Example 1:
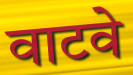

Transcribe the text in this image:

वाटवे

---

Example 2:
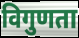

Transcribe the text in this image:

विगुणता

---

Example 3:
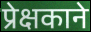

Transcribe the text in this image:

प्रेक्षकाने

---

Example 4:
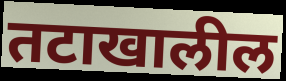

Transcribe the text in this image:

तटाखालील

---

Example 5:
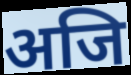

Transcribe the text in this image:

अजि